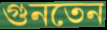
গুনতেন